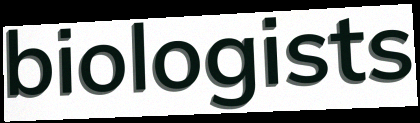
biologists